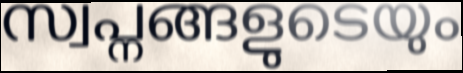
സ്വപ്നങ്ങളുടെയും